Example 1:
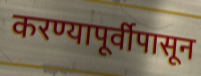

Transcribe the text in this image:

करण्यापूर्वीपासून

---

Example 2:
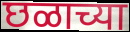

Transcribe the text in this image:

छळाच्या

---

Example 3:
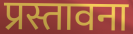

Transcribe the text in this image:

प्रस्तावना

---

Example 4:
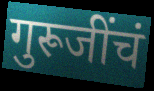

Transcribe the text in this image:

गुरूजींचं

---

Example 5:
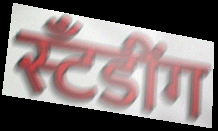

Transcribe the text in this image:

स्टँडींग